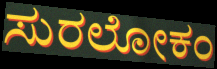
ಸುರಲೋಕಂ